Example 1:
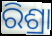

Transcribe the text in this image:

ରିଶ୍ରା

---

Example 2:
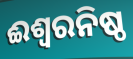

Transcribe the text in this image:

ଈଶ୍ୱରନିଷ୍ଠ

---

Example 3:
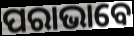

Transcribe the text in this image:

ପରାଭାବେ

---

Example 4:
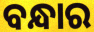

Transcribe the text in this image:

ବନ୍ଧାର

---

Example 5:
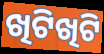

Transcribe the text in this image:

ଖିଟିଖିଟି